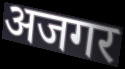
अजगर